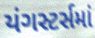
યંગસ્ટર્સમાં